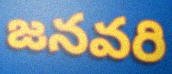
జనవరి